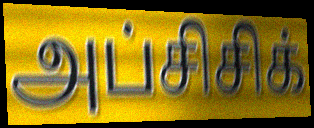
அப்சிசிக்